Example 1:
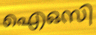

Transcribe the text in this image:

ഐഒസി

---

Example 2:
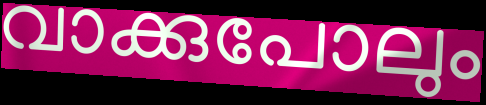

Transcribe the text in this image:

വാക്കുപോലും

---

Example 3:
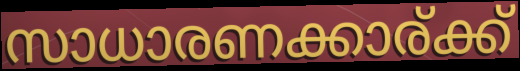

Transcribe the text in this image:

സാധാരണക്കാര്ക്ക്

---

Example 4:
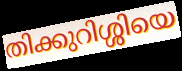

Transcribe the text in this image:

തിക്കുറിശ്ശിയെ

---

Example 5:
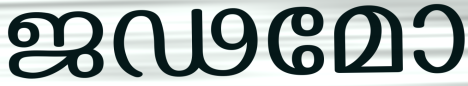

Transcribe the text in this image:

ജഢമോ